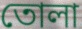
তোলা